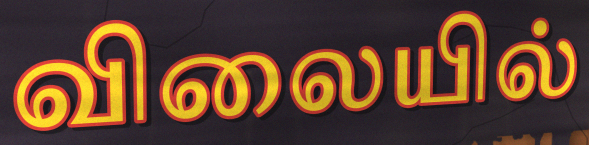
விலையில்